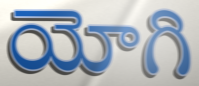
యోగి